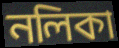
নলিকা